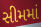
સીમમાં